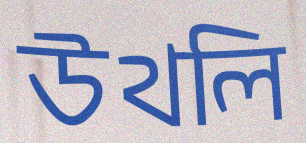
উথলি